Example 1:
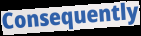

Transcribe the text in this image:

Consequently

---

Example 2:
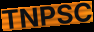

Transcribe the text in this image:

TNPSC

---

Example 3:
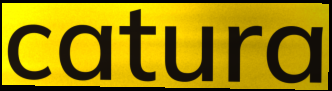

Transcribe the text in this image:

catura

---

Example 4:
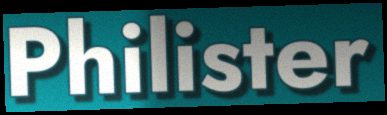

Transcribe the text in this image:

Philister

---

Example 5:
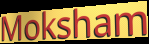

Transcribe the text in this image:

Moksham